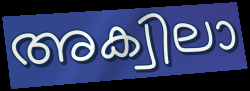
അക്വിലാ